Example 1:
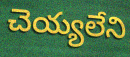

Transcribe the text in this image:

చెయ్యలేని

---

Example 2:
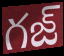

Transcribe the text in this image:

గజ్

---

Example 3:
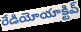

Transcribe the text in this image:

రేడియోయాక్టివ్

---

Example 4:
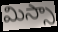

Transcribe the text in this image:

మిస్సా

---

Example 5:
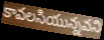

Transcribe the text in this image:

కావలసియున్నవని